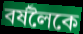
বৰ্ষলৈকে